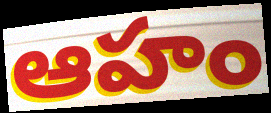
ఆహం